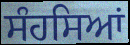
ਸੰਹਸਿਆਂ